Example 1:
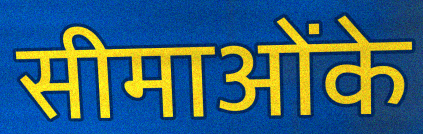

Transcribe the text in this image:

सीमाओंके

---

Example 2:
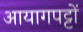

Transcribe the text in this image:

आयागपट्टों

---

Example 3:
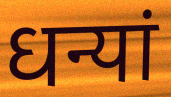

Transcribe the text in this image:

धन्यां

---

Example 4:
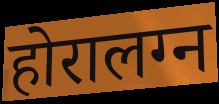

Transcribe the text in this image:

होरालग्न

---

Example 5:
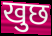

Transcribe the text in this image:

खुछ